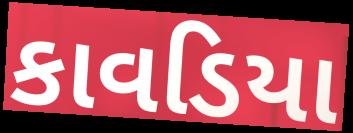
કાવડિયા